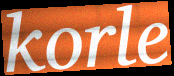
korle